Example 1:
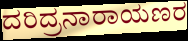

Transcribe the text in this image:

ದರಿದ್ರನಾರಾಯಣರ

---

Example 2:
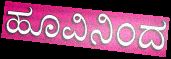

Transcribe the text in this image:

ಹೂವಿನಿಂದ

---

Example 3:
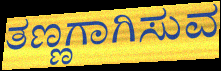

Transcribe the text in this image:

ತಣ್ಣಗಾಗಿಸುವ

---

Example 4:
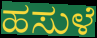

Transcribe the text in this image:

ಹಸುಳೆ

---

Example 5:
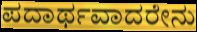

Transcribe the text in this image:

ಪದಾರ್ಥವಾದರೇನು